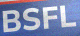
BSFL